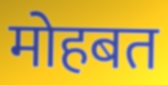
मोहबत